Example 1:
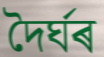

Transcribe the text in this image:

দৈৰ্ঘৰ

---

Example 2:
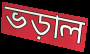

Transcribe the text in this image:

ভড়াল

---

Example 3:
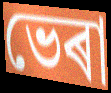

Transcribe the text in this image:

ভেৰা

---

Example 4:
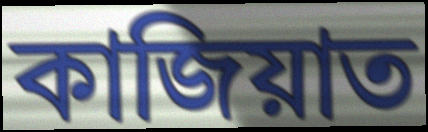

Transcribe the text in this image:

কাজিয়াত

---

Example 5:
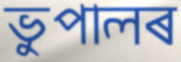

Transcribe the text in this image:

ভুপালৰ